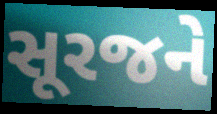
સૂરજને